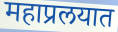
महाप्रलयात